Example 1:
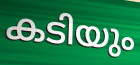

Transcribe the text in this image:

കടിയും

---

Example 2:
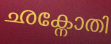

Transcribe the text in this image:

ഛക്നോതി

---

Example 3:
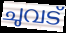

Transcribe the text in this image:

ചുവട്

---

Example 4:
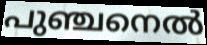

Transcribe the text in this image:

പുഞ്ചനെൽ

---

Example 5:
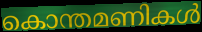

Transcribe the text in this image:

കൊന്തമണികൾ